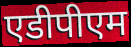
एडीपीएम